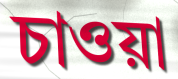
চাওয়া